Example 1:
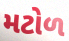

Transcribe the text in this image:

મટોળ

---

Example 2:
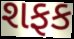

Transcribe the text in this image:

શફક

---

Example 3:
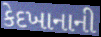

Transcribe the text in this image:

કેદખાનાની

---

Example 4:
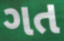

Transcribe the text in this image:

ગત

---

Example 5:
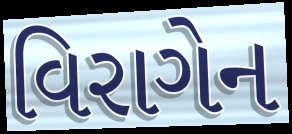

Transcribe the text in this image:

વિરાગેન